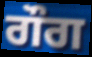
ਗੌਗ